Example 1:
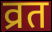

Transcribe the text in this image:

व्रत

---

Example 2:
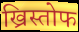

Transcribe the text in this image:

ख्रिस्तोफ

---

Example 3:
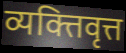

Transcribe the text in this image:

व्यक्तिवृत्त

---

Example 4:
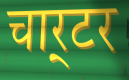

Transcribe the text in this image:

चार्टर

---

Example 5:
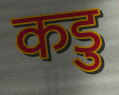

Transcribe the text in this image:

कडु